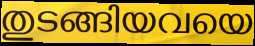
തുടങ്ങിയവയെ